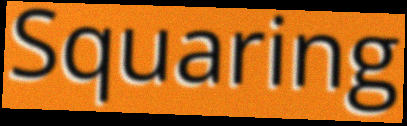
Squaring